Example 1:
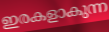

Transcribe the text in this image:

ഇരകളാകുന്ന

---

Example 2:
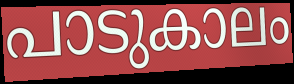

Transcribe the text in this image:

പാടുകാലം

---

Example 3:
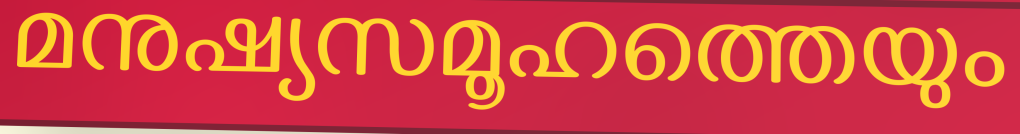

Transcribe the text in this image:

മനുഷ്യസമൂഹത്തെയും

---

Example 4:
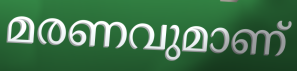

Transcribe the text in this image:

മരണവുമാണ്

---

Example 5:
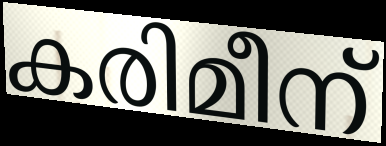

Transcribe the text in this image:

കരിമീന്